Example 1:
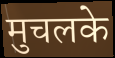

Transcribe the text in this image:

मुचलके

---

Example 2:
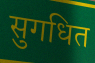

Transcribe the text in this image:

सुगधित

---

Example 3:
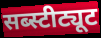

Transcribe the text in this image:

सब्स्टीट्यूट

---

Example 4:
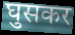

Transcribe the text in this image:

घुसकर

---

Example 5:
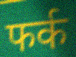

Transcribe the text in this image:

फर्क